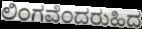
ಲಿಂಗವೆಂದರುಹಿದ